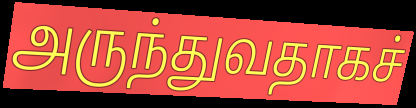
அருந்துவதாகச்